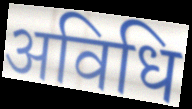
अविधि